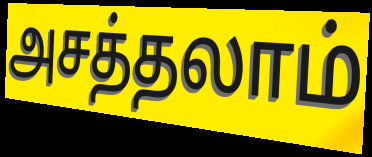
அசத்தலாம்